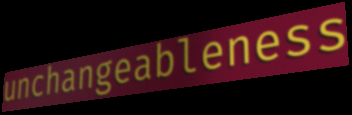
unchangeableness